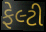
ફેલ્ટી